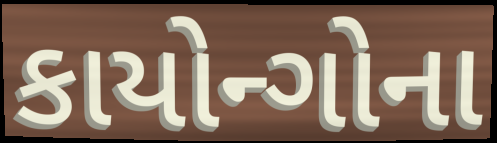
કાયોન્ગોના